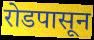
रोडपासून